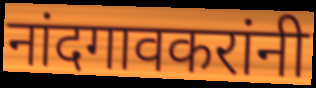
नांदगावकरांनी